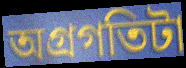
অগ্রগতিটা